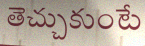
తెచ్చుకుంటే